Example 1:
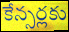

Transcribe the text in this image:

కేన్సర్లకు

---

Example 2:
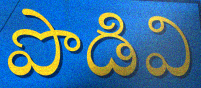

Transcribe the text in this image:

పొడివి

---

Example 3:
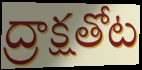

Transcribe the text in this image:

ద్రాక్షతోట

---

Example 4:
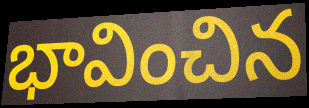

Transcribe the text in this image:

భావించిన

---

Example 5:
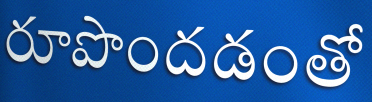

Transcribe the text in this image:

రూపొందడంతో